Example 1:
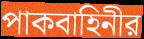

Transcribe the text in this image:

পাকবাহিনীর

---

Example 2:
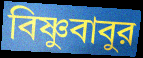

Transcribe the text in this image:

বিষ্ণুবাবুর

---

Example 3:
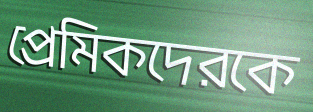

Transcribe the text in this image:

প্রেমিকদেরকে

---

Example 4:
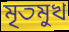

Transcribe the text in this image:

মৃতমুখ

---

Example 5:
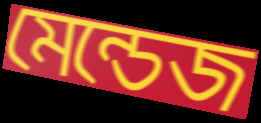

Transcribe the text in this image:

মেন্ডেজ